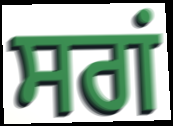
ਸਗਂ